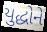
યુદ્ધોને